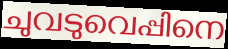
ചുവടുവെപ്പിനെ